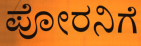
ಪೋರನಿಗೆ